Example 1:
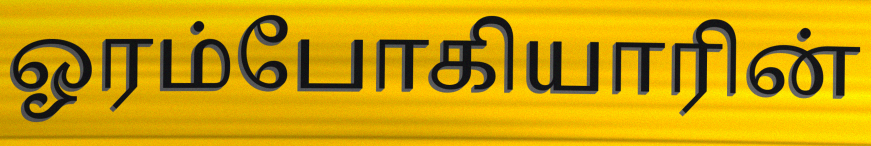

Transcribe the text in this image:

ஓரம்போகியாரின்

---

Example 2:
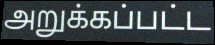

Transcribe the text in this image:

அறுக்கப்பட்ட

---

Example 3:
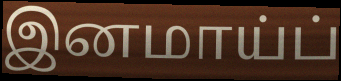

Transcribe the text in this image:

இனமாய்ப்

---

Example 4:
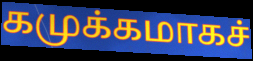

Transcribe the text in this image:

கமுக்கமாகச்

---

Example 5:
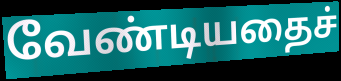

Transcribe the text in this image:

வேண்டியதைச்